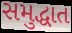
સમુદ્ધાત